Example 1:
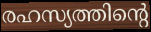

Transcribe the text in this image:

രഹസ്യത്തിന്റെ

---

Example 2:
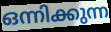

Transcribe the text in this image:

ഒന്നിക്കുന്ന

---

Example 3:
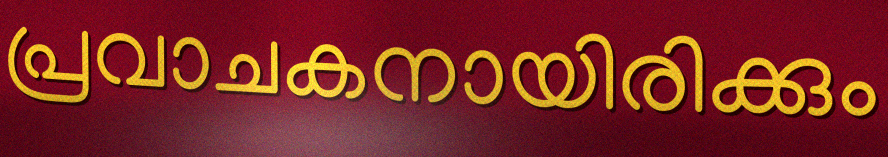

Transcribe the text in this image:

പ്രവാചകനായിരിക്കും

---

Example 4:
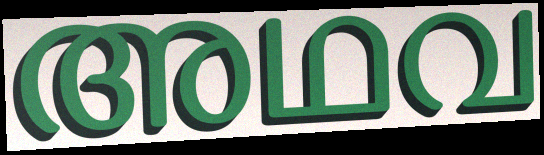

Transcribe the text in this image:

അഥവ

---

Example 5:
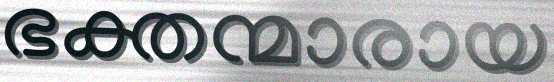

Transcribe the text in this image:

ഭക്തന്മാരായ